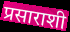
प्रसाराशी